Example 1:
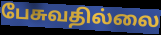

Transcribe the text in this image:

பேசுவதில்லை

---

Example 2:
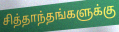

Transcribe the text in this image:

சித்தாந்தங்களுக்கு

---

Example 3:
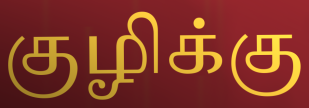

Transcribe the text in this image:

குழிக்கு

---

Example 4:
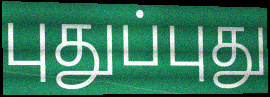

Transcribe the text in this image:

புதுப்புது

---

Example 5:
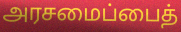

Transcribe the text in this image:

அரசமைப்பைத்